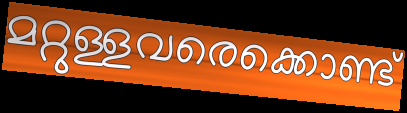
മറ്റുള്ളവരെക്കൊണ്ട്